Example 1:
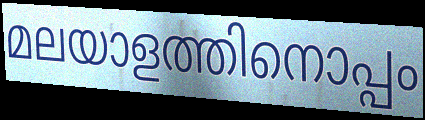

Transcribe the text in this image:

മലയാളത്തിനൊപ്പം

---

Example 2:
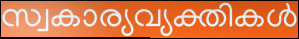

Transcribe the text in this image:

സ്വകാര്യവ്യക്തികൾ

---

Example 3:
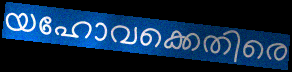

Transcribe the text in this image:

യഹോവക്കെതിരെ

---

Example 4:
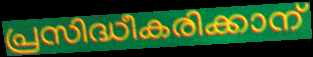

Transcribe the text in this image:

പ്രസിദ്ധീകരിക്കാന്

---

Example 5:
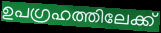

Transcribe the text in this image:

ഉപഗ്രഹത്തിലേക്ക്